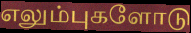
எலும்புகளோடு